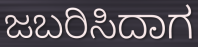
ಜಬರಿಸಿದಾಗ